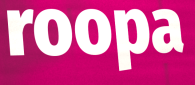
roopa